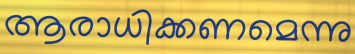
ആരാധിക്കണമെന്നു